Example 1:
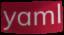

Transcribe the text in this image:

yaml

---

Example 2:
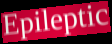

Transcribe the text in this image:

Epileptic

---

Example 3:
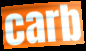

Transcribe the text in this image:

carb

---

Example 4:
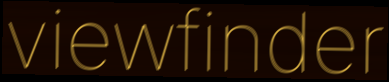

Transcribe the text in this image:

viewfinder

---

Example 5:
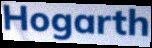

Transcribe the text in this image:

Hogarth